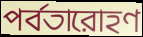
পর্বতারোহণ